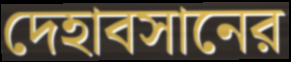
দেহাবসানের